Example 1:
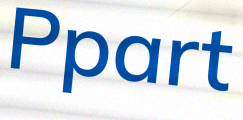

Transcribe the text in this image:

Ppart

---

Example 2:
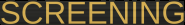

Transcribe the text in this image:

SCREENING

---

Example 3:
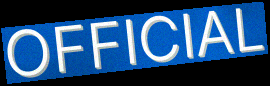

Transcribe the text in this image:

OFFICIAL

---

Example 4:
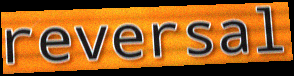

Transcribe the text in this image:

reversal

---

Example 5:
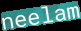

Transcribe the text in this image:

neelam